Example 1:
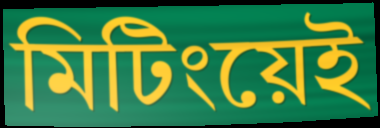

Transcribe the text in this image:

মিটিংয়েই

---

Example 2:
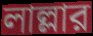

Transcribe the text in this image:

লাল্লার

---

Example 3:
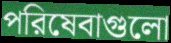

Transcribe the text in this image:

পরিষেবাগুলো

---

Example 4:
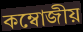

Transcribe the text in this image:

কম্বোজীয়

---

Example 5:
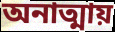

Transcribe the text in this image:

অনাত্মায়